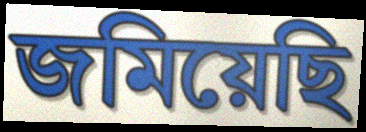
জমিয়েছি